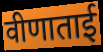
वीणाताई